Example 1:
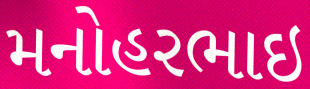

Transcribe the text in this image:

મનોહરભાઇ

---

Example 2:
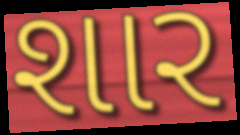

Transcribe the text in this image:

શાર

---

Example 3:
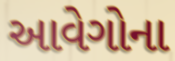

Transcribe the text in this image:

આવેગોના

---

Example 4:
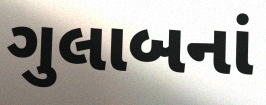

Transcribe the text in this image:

ગુલાબનાં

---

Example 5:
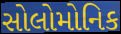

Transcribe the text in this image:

સોલોમોનિક